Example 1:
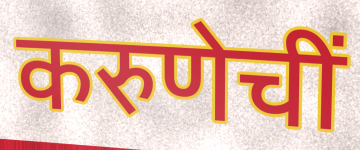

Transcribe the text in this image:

करुणेचीं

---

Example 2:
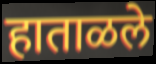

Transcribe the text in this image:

हाताळले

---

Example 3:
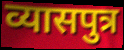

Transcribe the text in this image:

व्यासपुत्र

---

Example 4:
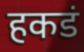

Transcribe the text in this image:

हकडं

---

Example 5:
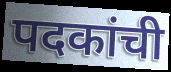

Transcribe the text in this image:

पदकांची